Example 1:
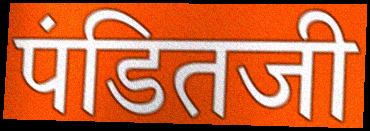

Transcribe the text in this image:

पंडितजी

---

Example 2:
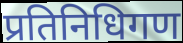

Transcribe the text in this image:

प्रतिनिधिगण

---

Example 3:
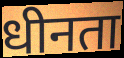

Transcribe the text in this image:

धीनता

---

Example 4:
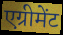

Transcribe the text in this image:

एग्रीमेंट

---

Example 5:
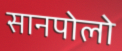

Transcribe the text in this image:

सानपोलो